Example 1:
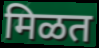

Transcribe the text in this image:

मिळत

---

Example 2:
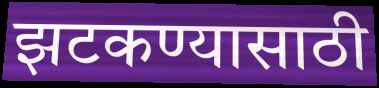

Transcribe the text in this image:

झटकण्यासाठी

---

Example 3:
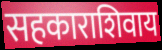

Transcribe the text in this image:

सहकाराशिवाय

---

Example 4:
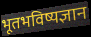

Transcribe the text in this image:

भूतभविष्यज्ञान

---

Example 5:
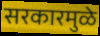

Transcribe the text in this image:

सरकारमुळे